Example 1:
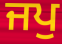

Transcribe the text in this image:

ਜਪੁ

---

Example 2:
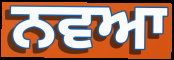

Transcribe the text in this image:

ਨਵਆ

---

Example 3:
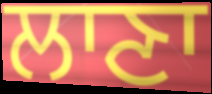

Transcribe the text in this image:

ਲਾਣਾ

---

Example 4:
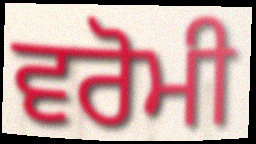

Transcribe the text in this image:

ਵਰੋਮੀ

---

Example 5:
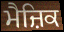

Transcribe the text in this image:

ਮੈਜ਼ਿਕ